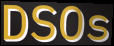
DSOs